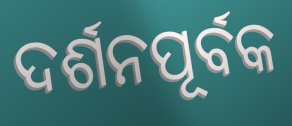
ଦର୍ଶନପୂର୍ବକ